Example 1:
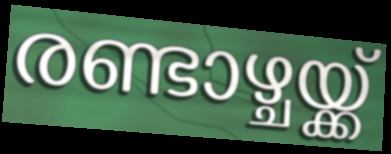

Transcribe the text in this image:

രണ്ടാഴ്ചയ്ക്ക്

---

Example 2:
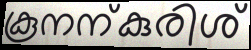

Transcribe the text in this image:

കൂനന്കുരിശ്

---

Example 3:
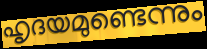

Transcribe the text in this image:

ഹൃദയമുണ്ടെന്നും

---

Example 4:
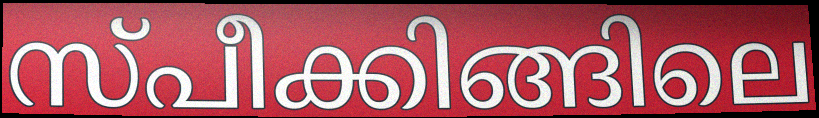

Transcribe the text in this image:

സ്പീക്കിങ്ങിലെ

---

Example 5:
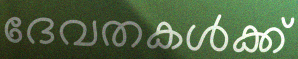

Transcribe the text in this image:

ദേവതകൾക്ക്